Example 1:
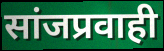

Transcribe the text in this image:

सांजप्रवाही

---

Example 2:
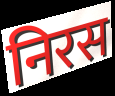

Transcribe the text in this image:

निरस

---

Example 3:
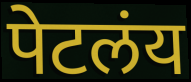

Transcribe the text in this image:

पेटलंय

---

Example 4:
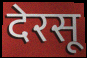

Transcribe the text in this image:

देरसू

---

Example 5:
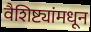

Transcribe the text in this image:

वैशिष्ट्यांमधून